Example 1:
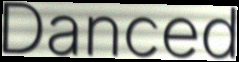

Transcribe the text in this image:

Danced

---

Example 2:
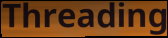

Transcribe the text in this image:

Threading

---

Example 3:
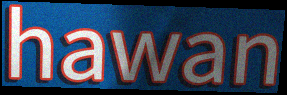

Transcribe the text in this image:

hawan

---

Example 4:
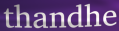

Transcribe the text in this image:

thandhe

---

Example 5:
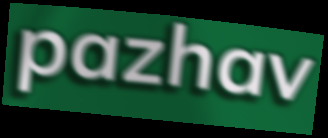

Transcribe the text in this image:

pazhav